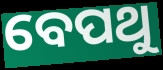
ବେପଥୁ